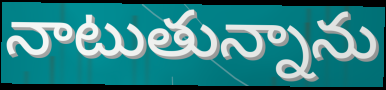
నాటుతున్నాను